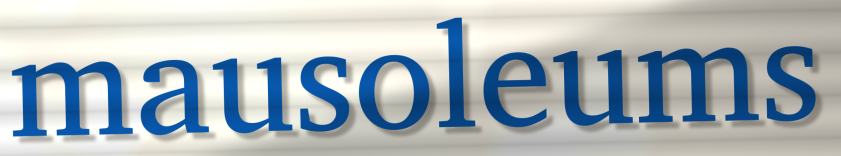
mausoleums